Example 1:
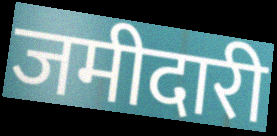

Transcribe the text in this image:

जमीदारी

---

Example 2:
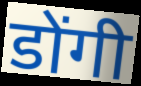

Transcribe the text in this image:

डोंगी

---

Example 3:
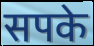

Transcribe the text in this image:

सपके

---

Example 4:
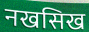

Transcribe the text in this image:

नखसिख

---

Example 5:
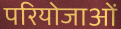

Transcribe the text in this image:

परियोजाओं